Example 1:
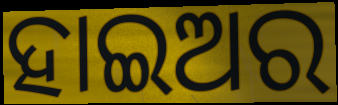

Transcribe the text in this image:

ହାଇଅର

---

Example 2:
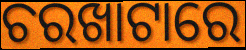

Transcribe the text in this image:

ଚରଖାଟାରେ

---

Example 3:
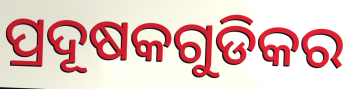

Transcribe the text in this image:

ପ୍ରଦୂଷକଗୁଡିକର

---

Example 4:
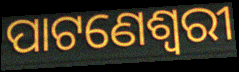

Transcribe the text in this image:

ପାଟଣେଶ୍ୱରୀ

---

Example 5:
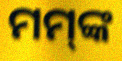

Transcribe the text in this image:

ମମ୍‌ଙ୍କ